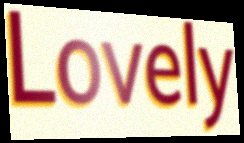
Lovely